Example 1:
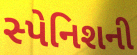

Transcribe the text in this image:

સ્પેનિશની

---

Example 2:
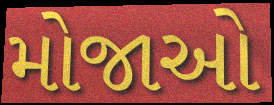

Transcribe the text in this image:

મોજાઓ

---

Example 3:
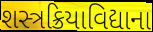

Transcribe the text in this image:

શસ્ત્રક્રિયાવિદ્યાના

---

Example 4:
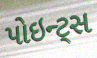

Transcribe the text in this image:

પોઇન્ટ્સ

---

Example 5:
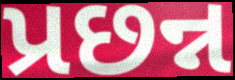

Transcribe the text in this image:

પ્રછન્ન